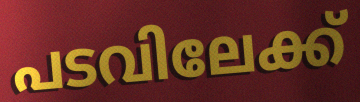
പടവിലേക്ക്